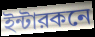
ইন্টারকনে